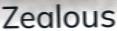
Zealous